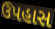
ઉપહાસ